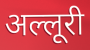
अल्लूरी